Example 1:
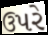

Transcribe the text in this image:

ઉપરે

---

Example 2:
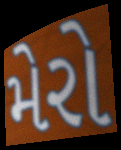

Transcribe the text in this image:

મેરો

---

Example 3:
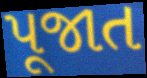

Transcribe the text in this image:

પૂજાત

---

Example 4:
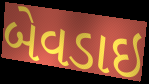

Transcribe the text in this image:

બેવડાઇ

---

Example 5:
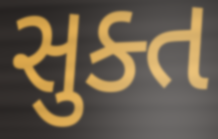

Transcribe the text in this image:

સુક્ત